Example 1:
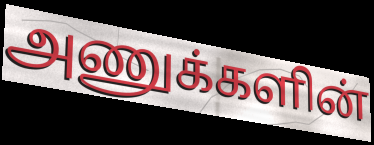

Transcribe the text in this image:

அணுக்களின்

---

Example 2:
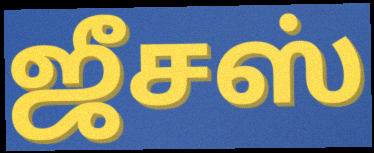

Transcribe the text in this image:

ஜீசஸ்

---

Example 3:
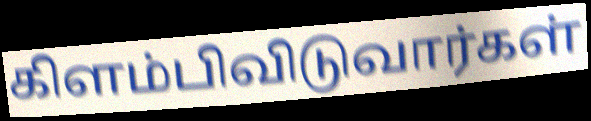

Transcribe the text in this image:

கிளம்பிவிடுவார்கள்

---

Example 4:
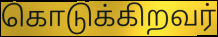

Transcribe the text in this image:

கொடுக்கிறவர்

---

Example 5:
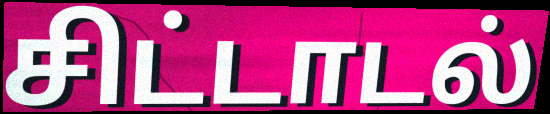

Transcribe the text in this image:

சிட்டாடல்